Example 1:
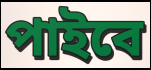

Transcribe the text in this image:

পাইবে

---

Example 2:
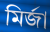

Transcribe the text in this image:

মির্জা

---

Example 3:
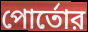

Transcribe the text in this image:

পোর্তোর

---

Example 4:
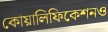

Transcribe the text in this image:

কোয়ালিফিকেশনও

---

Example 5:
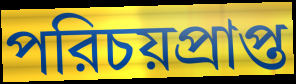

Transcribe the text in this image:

পরিচয়প্রাপ্ত